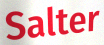
Salter